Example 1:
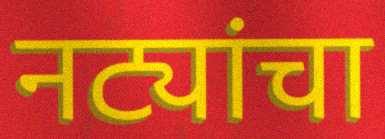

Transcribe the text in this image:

नट्यांचा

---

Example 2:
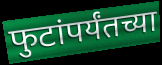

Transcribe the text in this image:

फुटांपर्यंतच्या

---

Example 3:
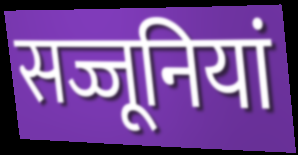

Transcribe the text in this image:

सज्जूनियां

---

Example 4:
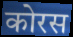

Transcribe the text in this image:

कोरस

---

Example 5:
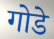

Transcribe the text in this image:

गोडे